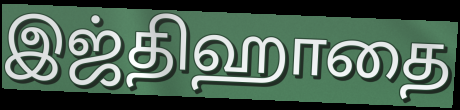
இஜ்திஹாதை